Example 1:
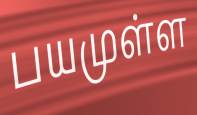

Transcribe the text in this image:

பயமுள்ள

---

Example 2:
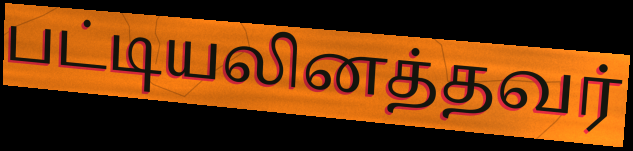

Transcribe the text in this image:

பட்டியலினத்தவர்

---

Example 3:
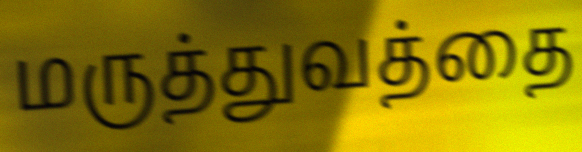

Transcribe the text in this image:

மருத்துவத்தை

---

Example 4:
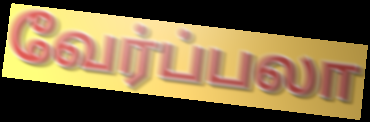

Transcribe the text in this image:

வேர்ப்பலா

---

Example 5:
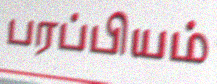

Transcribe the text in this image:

பரப்பியம்